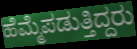
ಹೆಮ್ಮೆಪಡುತ್ತಿದ್ದರು